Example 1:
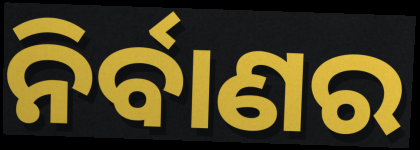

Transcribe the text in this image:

ନିର୍ବାଣର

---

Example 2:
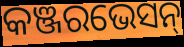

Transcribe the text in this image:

କଞ୍ଜରଭେସନ୍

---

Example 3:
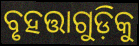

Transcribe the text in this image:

ବୃହତ୍ତାଗୁଡ଼ିକୁ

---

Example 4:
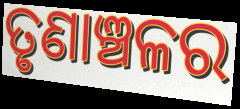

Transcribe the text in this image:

ତୃଣାଞ୍ଚଳର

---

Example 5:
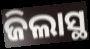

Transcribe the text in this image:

ଜିଲାସ୍ଥ